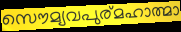
സൌമ്യവപുര്മഹാത്മാ